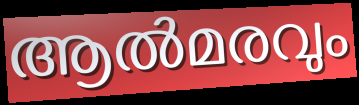
ആൽമരവും